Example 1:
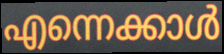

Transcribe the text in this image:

എന്നെക്കാൾ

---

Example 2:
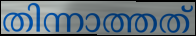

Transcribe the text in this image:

തിന്നാത്തത്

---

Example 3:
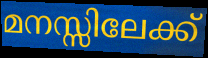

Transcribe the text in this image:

മനസ്സിലേക്ക്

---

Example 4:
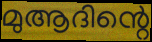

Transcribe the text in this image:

മുആദിന്റെ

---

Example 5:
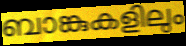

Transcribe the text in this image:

ബാങ്കുകളിലും